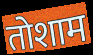
तोशाम